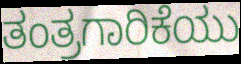
ತಂತ್ರಗಾರಿಕೆಯು